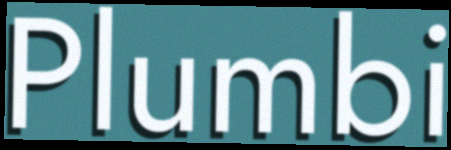
Plumbi